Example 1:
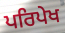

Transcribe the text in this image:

ਪਰਿਪੇਖ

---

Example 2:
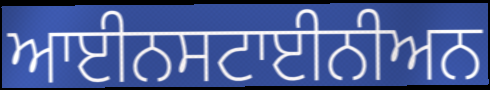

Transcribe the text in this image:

ਆਈਨਸਟਾਈਨੀਅਨ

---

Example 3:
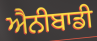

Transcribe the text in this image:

ਐਨੀਬਾਡੀ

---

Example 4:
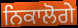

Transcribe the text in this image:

ਨਿਕਾਲੋਗੇ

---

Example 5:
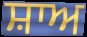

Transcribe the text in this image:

ਸ਼ਾਅ